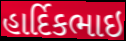
હાર્દિકભાઇ